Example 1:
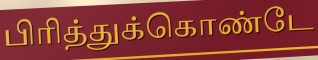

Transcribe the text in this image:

பிரித்துக்கொண்டே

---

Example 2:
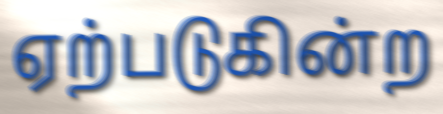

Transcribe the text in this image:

ஏற்படுகின்ற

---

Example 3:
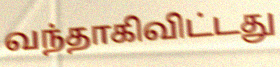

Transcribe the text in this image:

வந்தாகிவிட்டது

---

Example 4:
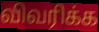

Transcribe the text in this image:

விவரிக்க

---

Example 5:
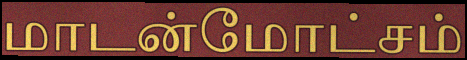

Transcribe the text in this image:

மாடன்மோட்சம்